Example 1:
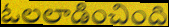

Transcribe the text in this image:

ఓలలాడించింది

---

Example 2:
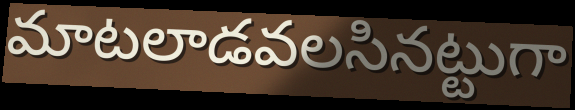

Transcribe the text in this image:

మాటలాడవలసినట్టుగా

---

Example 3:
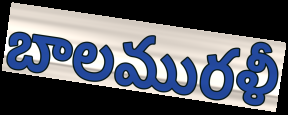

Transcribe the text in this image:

బాలమురళీ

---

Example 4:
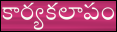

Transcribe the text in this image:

కార్యకలాపం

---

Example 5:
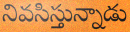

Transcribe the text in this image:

నివసిస్తున్నాడు